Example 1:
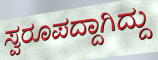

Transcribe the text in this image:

ಸ್ವರೂಪದ್ದಾಗಿದ್ದು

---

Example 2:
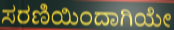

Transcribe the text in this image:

ಸರಣಿಯಿಂದಾಗಿಯೇ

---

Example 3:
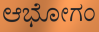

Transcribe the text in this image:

ಆಭೋಗಂ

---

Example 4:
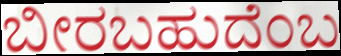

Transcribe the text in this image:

ಬೀರಬಹುದೆಂಬ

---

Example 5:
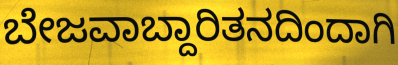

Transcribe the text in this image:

ಬೇಜವಾಬ್ದಾರಿತನದಿಂದಾಗಿ